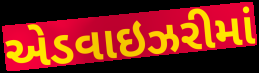
એડવાઇઝરીમાં